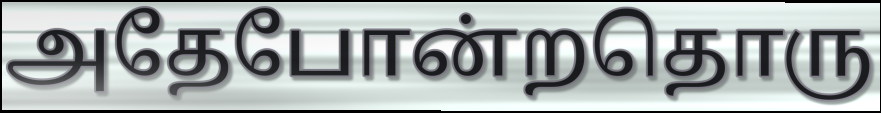
அதேபோன்றதொரு